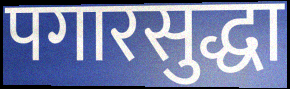
पगारसुद्धा